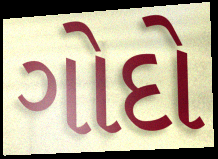
ગોદો